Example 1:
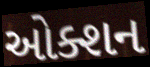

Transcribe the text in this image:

ઓક્શન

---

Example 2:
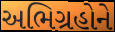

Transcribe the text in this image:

અભિગ્રહોને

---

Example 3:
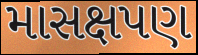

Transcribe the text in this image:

માસક્ષપણ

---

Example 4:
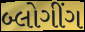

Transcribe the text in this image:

બ્લોગીંગ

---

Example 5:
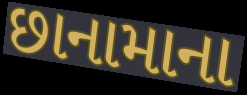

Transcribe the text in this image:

છાનામાના